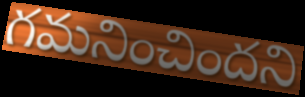
గమనించిందని